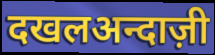
दखलअन्दाज़ी